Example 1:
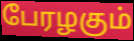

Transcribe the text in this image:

பேரழகும்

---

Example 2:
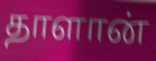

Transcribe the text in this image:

தாளான்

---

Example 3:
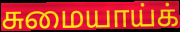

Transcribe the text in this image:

சுமையாய்க்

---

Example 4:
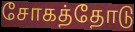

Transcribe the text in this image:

சோகத்தோடு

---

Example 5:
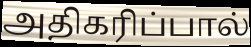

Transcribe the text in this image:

அதிகரிப்பால்